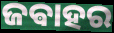
ଜଵାହର